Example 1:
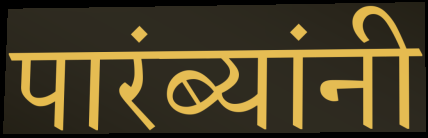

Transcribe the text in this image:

पारंब्यांनी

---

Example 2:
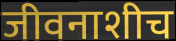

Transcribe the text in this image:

जीवनाशीच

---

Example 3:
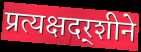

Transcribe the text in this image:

प्रत्यक्षदर्शीने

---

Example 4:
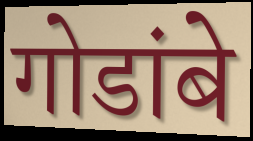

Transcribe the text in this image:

गोडांबे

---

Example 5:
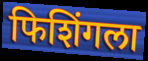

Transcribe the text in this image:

फिशिंगला